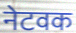
नेटवक